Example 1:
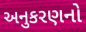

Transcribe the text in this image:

અનુકરણનો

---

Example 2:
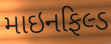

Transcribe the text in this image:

માઇનફિલ્ડ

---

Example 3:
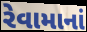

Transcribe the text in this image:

રેવામાનાં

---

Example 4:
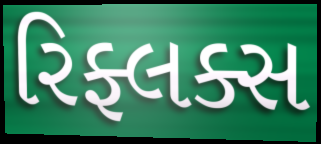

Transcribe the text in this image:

રિફ્લક્સ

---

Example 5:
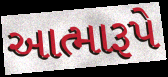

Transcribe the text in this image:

આત્મારૂપે